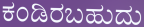
ಕಂಡಿರಬಹುದು